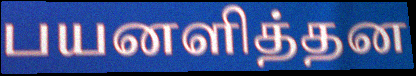
பயனளித்தன